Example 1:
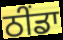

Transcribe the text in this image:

ਠੀਂਡਾ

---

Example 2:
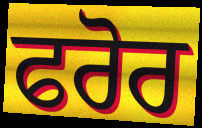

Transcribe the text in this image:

ਫਰੋਰ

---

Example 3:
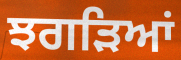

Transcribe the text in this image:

ਝਗੜਿਆਂ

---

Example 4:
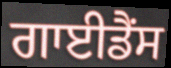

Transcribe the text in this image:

ਗਾਈਡੈਂਸ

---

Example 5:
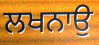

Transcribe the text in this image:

ਲਖਨਾਉ